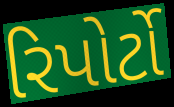
રિપોર્ટો